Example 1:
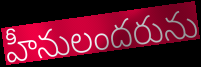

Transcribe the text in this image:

హీనులందరును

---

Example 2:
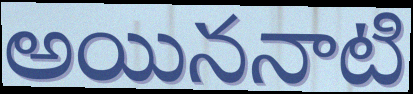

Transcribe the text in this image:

అయిననాటి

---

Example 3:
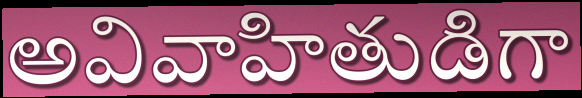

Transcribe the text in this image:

అవివాహితుడిగా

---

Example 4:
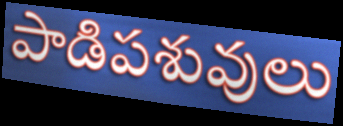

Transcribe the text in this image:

పాడిపశువులు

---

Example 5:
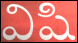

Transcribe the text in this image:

విషి